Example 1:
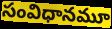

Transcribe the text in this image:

సంవిధానమూ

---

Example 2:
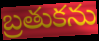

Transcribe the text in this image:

బ్రతుకను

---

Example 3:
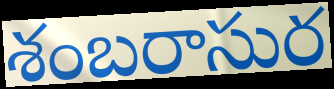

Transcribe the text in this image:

శంబరాసుర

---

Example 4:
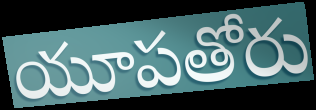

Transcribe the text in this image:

యూపతోరు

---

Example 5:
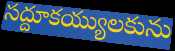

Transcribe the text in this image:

సద్దూకయ్యులకును